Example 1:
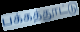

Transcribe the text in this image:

பக்கத்தூட்டு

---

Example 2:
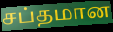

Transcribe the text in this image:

சப்தமான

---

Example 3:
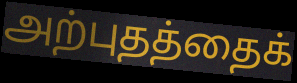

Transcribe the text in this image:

அற்புதத்தைக்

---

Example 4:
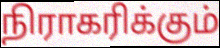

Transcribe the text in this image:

நிராகரிக்கும்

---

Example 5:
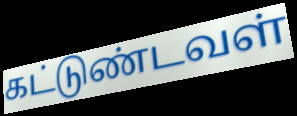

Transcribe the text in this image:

கட்டுண்டவள்